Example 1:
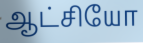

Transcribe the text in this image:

ஆட்சியோ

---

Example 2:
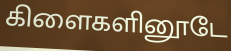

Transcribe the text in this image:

கிளைகளினூடே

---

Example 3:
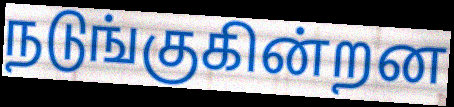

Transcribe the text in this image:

நடுங்குகின்றன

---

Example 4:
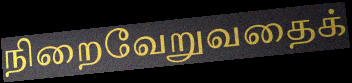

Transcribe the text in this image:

நிறைவேறுவதைக்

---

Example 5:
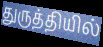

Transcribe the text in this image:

துருத்தியில்